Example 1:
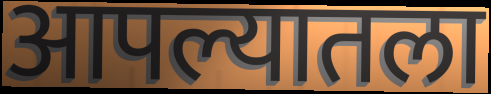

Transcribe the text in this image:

आपल्यातला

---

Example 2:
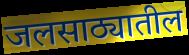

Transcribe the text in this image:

जलसाठ्यातील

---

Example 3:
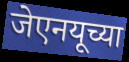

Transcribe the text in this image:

जेएनयूच्या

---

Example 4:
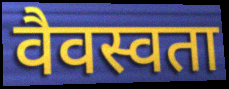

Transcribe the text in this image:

वैवस्वता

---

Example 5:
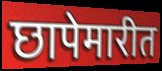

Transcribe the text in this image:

छापेमारीत